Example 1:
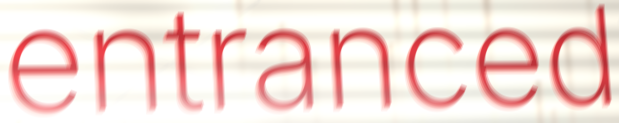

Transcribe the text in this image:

entranced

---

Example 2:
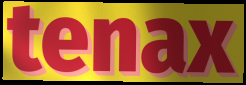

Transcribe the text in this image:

tenax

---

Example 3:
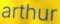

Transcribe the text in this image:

arthur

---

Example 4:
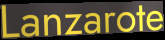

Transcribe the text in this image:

Lanzarote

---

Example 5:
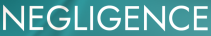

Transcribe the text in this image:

NEGLIGENCE